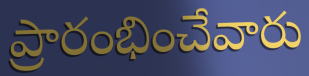
ప్రారంభించేవారు